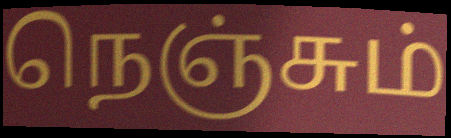
நெஞ்சும்